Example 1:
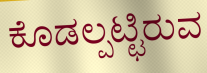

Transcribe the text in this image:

ಕೊಡಲ್ಪಟ್ಟಿರುವ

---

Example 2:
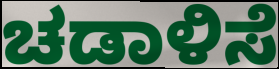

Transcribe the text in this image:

ಚಡಾಳಿಸೆ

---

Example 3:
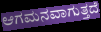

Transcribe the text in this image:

ಆಗಮನವಾಗುತ್ತದೆ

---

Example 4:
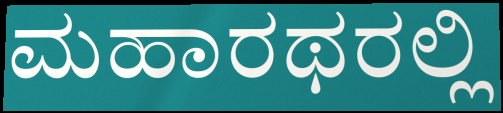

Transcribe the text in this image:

ಮಹಾರಥರಲ್ಲಿ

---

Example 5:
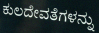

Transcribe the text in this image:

ಕುಲದೇವತೆಗಳನ್ನು